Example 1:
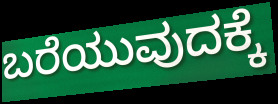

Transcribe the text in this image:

ಬರೆಯುವುದಕ್ಕೆ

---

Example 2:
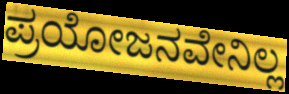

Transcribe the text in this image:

ಪ್ರಯೋಜನವೇನಿಲ್ಲ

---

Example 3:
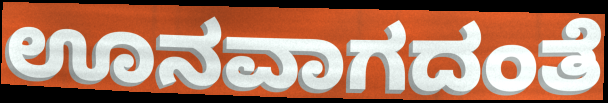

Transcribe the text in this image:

ಊನವಾಗದಂತೆ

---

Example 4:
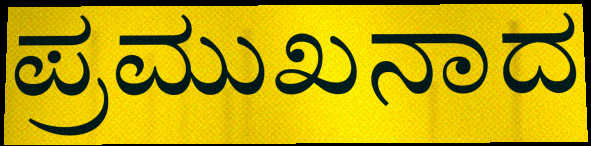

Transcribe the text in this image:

ಪ್ರಮುಖನಾದ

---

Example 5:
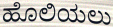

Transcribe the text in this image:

ಹೊಲಿಯಲು